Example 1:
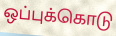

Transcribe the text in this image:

ஒப்புக்கொடு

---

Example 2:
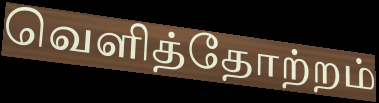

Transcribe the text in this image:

வெளித்தோற்றம்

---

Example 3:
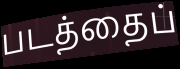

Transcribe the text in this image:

படத்தைப்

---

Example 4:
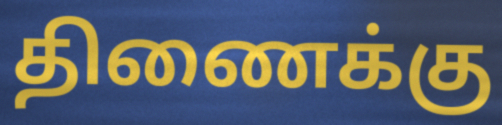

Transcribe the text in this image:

திணைக்கு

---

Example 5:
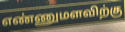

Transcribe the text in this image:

எண்ணுமளவிற்கு